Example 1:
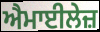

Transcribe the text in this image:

ਐਮਾਈਲੇਜ਼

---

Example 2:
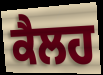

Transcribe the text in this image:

ਕੈਲਹ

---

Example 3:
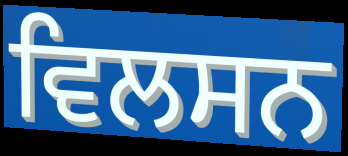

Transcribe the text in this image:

ਵਿਲਸਨ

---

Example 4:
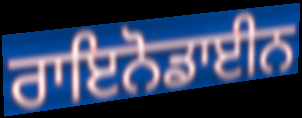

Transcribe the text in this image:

ਰਾਇਨੋਡਾਈਨ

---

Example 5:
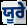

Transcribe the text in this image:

ਯੂਰੇ